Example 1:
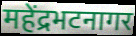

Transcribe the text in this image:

महेंद्रभटनागर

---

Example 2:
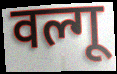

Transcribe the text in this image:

वल्गू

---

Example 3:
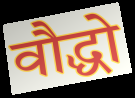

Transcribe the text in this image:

वौद्धो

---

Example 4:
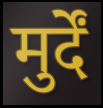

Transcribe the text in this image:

मुर्दें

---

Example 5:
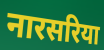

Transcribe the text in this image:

नारसरिया